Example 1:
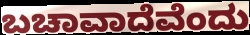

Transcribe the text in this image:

ಬಚಾವಾದೆವೆಂದು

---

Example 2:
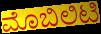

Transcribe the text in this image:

ಮೊಬಿಲಿಟಿ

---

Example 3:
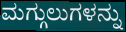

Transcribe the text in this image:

ಮಗ್ಗುಲುಗಳನ್ನು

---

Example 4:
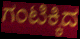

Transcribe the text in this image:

ಗಂಟಿಕ್ಕಿದ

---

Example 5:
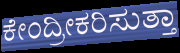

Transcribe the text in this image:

ಕೇಂದ್ರೀಕರಿಸುತ್ತಾ